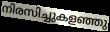
നിരസിച്ചുകളഞ്ഞു